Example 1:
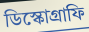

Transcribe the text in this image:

ডিস্কোগ্রাফি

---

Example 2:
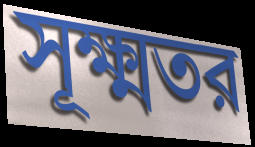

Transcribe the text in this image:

সূক্ষ্মতর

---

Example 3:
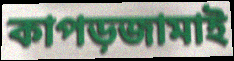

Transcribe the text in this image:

কাপড়জামাই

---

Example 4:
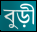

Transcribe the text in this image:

বুড়ী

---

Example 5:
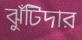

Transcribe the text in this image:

ঝুঁটিদার